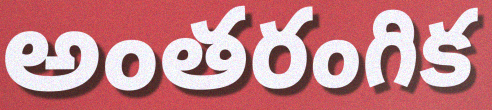
అంతరంగిక